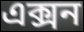
এক্সন